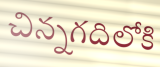
చిన్నగదిలోకి